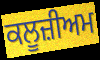
ਕਲੂਜ਼ੀਅਮ